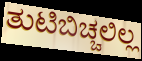
ತುಟಿಬಿಚ್ಚಲಿಲ್ಲ